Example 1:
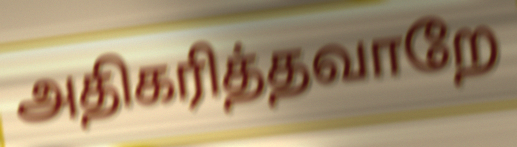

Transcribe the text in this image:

அதிகரித்தவாறே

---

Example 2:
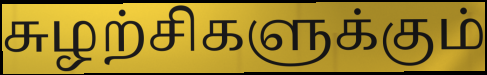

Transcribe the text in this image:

சுழற்சிகளுக்கும்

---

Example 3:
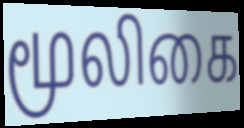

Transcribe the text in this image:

மூலிகை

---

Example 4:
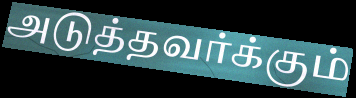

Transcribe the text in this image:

அடுத்தவர்க்கும்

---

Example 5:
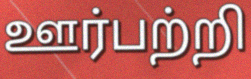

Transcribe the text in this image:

ஊர்பற்றி